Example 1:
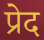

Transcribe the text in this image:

प्रेद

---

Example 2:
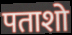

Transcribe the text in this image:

पताशो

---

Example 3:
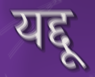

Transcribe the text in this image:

यद्दू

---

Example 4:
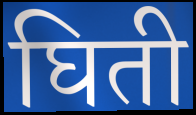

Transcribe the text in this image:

घिती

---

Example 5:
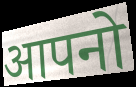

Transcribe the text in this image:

आपनो